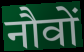
नौवों